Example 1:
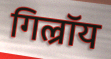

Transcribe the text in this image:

गिल्रॉय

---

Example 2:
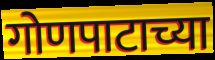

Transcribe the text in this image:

गोणपाटाच्या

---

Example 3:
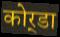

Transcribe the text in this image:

कोर्डा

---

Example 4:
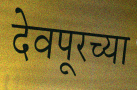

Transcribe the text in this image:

देवपूरच्या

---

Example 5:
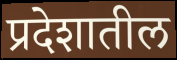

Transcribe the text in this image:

प्रदेशातील